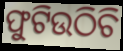
ଫୁଟିଉଠିଚି